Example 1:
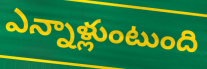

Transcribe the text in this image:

ఎన్నాళ్లుంటుంది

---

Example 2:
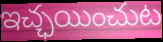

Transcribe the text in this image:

ఇచ్ఛయించుట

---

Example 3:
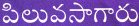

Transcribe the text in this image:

పిలువసాగారు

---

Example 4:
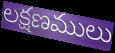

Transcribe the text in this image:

లక్షణములు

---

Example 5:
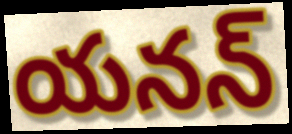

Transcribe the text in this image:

యనన్